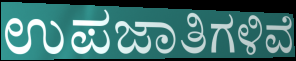
ಉಪಜಾತಿಗಳಿವೆ